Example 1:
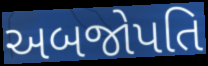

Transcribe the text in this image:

અબજોપતિ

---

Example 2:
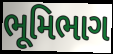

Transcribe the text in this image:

ભૂમિભાગ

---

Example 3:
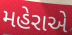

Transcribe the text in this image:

મહેરાએ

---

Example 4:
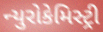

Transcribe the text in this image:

ન્યુરોકેમિસ્ટ્રી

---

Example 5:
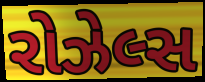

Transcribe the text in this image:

રોઝેલ્સ